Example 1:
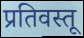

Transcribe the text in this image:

प्रतिवस्तू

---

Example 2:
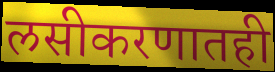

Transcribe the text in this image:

लसीकरणातही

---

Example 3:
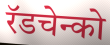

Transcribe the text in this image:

रॅडचेन्को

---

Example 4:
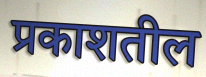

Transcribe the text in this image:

प्रकाशतील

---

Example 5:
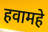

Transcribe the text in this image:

हवामहे